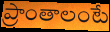
ప్రాంతాలంటే